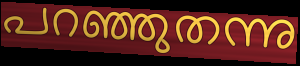
പറഞ്ഞുതന്നു